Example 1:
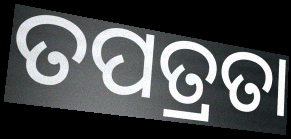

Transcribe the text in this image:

ତପତ୍ରତା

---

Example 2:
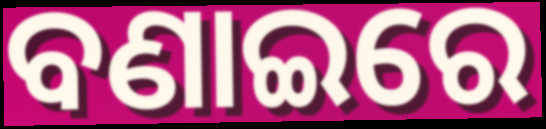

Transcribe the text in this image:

ବଣାଇରେ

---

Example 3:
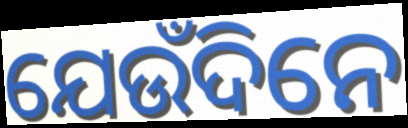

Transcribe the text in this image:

ଯେଉଁଦିନେ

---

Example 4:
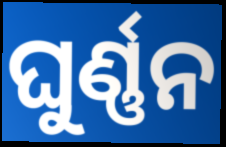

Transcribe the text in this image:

ଘୁର୍ଣ୍ଣନ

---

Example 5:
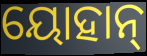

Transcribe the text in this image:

ୟୋହାନ୍